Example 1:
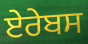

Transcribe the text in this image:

ਏਰੇਬਸ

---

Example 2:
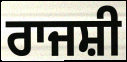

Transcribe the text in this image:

ਰਾਜਸ਼ੀ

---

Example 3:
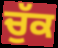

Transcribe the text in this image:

ਚੁੱਕ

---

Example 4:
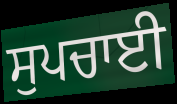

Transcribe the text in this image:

ਸੁਪਚਾਈ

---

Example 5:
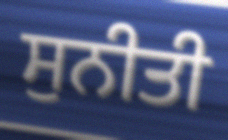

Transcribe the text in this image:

ਸੁਨੀਤੀ